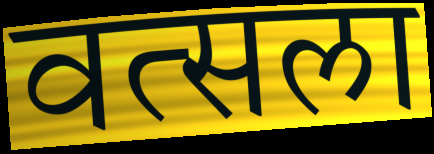
वत्सला